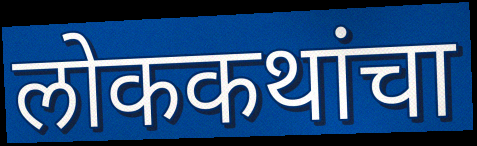
लोककथांचा